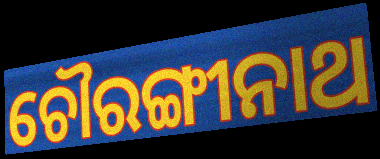
ଚୌରଙ୍ଗୀନାଥ